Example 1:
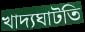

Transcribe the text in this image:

খাদ্যঘাটতি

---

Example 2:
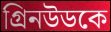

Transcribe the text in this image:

গ্রিনউডকে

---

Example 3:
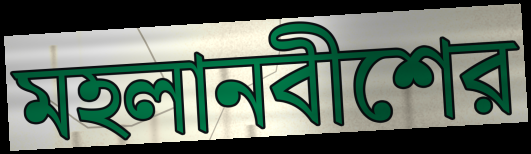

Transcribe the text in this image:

মহলানবীশের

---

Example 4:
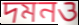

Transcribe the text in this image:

দমনও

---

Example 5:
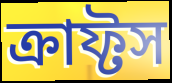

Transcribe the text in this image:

ক্রাফ্টস